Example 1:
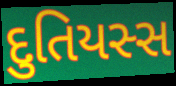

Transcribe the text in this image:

દુતિયસ્સ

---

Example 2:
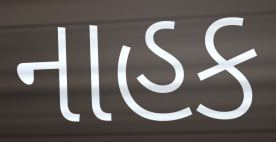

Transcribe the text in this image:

નાહક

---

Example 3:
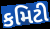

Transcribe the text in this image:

કમિટી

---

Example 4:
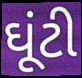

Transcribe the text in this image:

ઘૂંટી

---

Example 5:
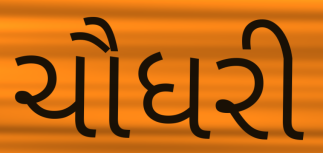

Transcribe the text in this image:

ચૌધરી